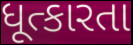
ધૂત્કારતા